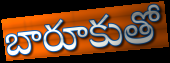
బారూకుతో